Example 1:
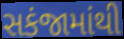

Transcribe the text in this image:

સકંજામાંથી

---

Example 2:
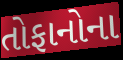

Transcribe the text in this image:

તોફાનોના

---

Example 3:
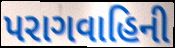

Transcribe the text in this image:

પરાગવાહિની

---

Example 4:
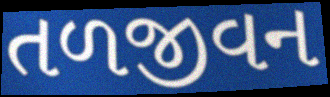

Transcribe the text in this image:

તળજીવન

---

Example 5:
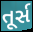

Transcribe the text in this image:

તૂર્સ